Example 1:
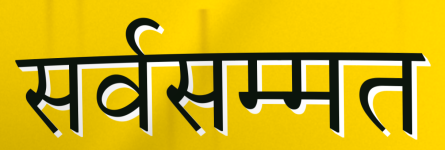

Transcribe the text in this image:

सर्वसम्मत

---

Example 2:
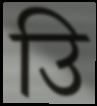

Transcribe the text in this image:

उि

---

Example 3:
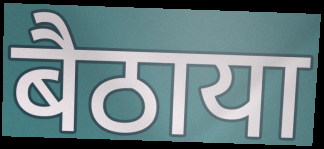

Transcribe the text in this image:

बैठाया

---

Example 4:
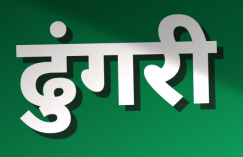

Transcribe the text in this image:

ढुंगरी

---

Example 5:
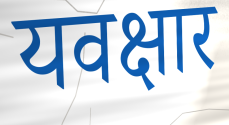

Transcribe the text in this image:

यवक्षार